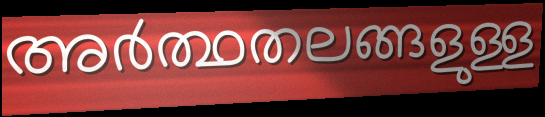
അർത്ഥതലങ്ങളുള്ള